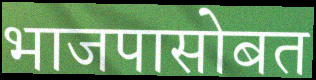
भाजपासोबत